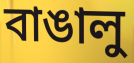
বাঙালু